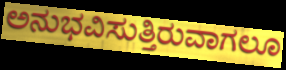
ಅನುಭವಿಸುತ್ತಿರುವಾಗಲೂ